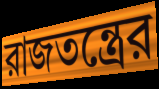
রাজতন্ত্রের